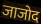
जाजोद